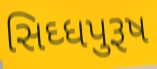
સિઘ્ધપુરૂષ